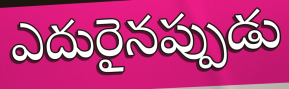
ఎదురైనప్పుడు